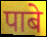
पाबे